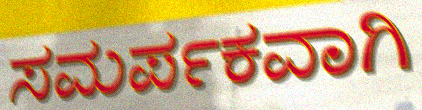
ಸಮರ್ಪಕವಾಗಿ